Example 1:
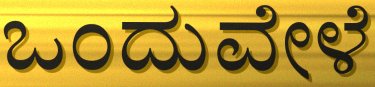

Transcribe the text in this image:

ಒಂದುವೇಳೆ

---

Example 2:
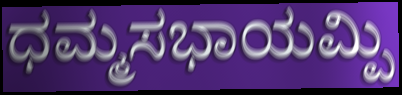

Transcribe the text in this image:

ಧಮ್ಮಸಭಾಯಮ್ಪಿ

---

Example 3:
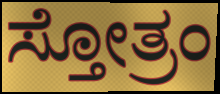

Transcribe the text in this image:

ಸ್ತೋತ್ರಂ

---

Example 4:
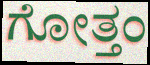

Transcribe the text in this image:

ಗೋತ್ತಂ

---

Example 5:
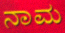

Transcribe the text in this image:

ನಾಮ